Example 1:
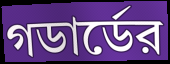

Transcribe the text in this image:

গডার্ডের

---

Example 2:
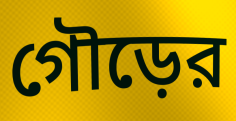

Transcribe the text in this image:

গৌড়ের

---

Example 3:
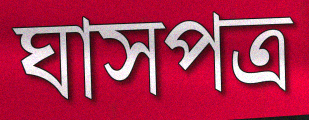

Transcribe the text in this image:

ঘাসপত্র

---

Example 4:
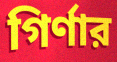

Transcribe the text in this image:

গির্ণার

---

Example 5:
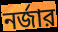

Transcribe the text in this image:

নর্জার